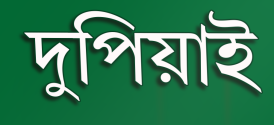
দুপিয়াই